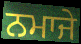
ਨਮਾਜੇ